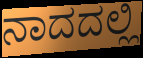
ನಾದದಲ್ಲಿ